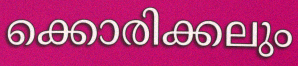
ക്കൊരിക്കലും